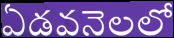
ఏడవనెలలో